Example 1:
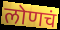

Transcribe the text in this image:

लोणचं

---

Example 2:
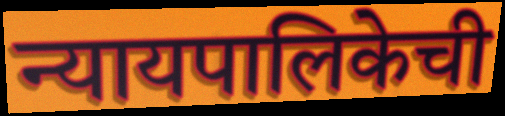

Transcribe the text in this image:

न्यायपालिकेची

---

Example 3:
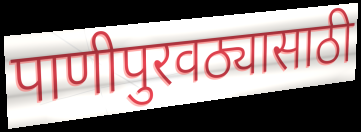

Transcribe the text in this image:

पाणीपुरवठ्यासाठी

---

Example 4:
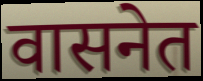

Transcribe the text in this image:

वासनेत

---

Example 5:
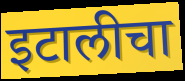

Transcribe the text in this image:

इटालीचा